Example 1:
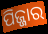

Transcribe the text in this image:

ପିଜ୍ଜାର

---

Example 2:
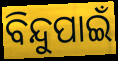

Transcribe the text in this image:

ବିନ୍ଦୁପାଇଁ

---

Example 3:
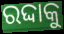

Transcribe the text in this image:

ରଦ୍ଦାକୁ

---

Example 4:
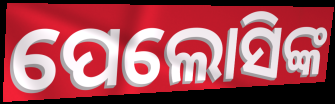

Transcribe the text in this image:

ପେଲୋସିଙ୍କ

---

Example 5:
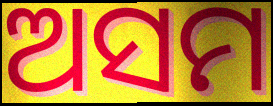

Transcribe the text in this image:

ଅସମ